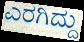
ಎರಗಿದ್ದು